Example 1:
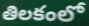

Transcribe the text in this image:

తిలకంలో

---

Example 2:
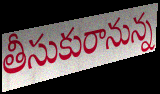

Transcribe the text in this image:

తీసుకురానున్న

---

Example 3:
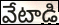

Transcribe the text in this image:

వేటాడి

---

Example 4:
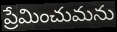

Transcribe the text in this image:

ప్రేమించుమను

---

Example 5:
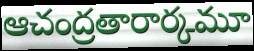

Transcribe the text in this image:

ఆచంద్రతారార్కమూ